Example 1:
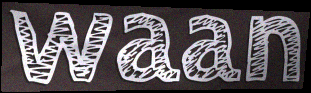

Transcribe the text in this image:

waan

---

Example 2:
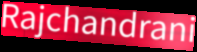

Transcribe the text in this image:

Rajchandrani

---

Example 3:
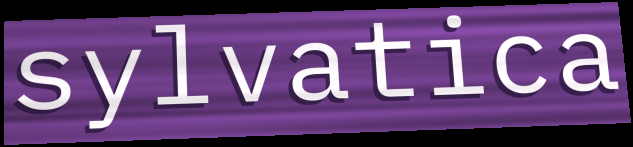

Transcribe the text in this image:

sylvatica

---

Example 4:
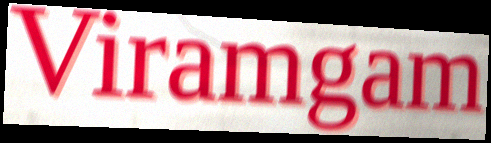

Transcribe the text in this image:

Viramgam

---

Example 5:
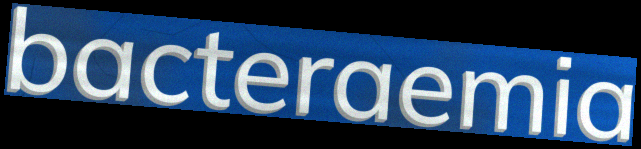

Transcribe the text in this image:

bacteraemia